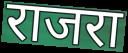
राजरा